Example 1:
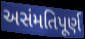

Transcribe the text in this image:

અસંમતિપૂર્ણ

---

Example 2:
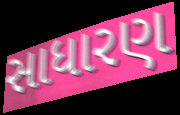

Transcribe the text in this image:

સાધારણ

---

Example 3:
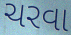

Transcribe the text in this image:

ચરવા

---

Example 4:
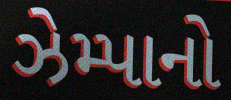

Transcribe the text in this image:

ઝેમ્પાનો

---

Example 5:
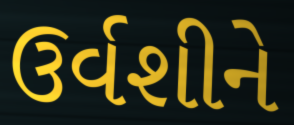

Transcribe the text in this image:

ઉર્વશીને